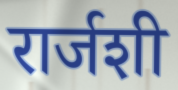
रार्जशी